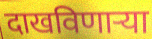
दाखविणाऱ्या